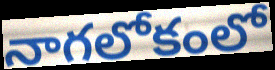
నాగలోకంలో